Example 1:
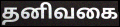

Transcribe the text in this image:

தனிவகை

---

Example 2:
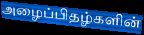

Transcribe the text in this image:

அழைப்பிதழ்களின்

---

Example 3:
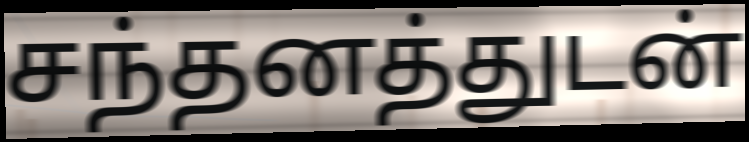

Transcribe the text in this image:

சந்தனத்துடன்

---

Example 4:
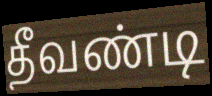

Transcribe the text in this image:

தீவண்டி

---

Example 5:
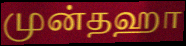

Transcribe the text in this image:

முன்தஹா